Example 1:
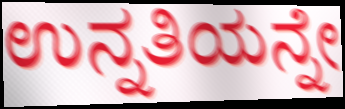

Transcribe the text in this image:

ಉನ್ನತಿಯನ್ನೇ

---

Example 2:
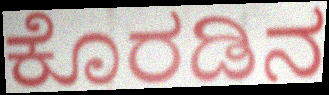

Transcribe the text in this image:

ಕೊರಡಿನ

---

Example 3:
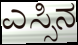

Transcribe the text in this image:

ಎಸ್ಸಿನ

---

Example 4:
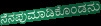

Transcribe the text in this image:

ನೆನಪುಮಾಡಿಕೊಂಡನು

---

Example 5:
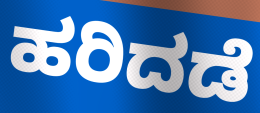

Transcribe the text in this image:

ಹರಿದಡೆ